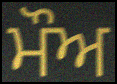
ਮੌਅ